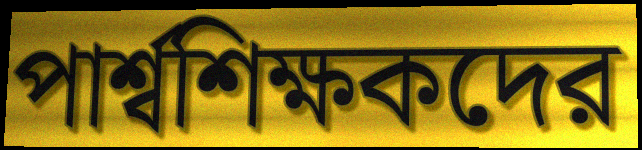
পার্শ্বশিক্ষকদের